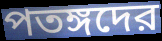
পতঙ্গদের